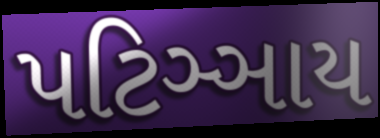
પટિઞ્ઞાય